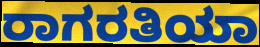
ರಾಗರತಿಯಾ